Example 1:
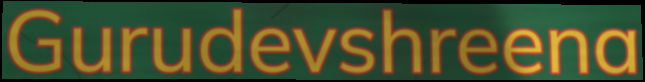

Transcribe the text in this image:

Gurudevshreena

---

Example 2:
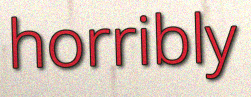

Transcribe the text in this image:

horribly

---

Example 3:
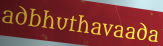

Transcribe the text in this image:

adbhuthavaada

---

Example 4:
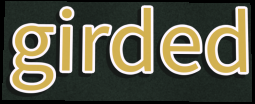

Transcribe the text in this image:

girded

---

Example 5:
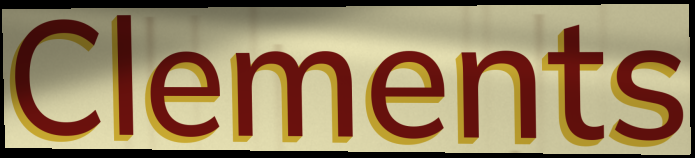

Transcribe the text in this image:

Clements